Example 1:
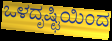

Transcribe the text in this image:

ಒಳದೃಷ್ಟಿಯಿಂದ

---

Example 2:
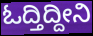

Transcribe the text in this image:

ಓದ್ತಿದ್ದೀನಿ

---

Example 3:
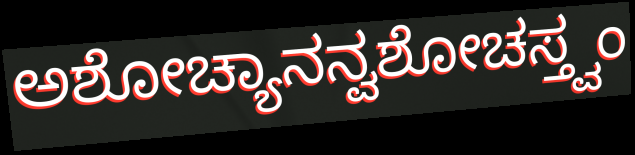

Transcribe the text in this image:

ಅಶೋಚ್ಯಾನನ್ವಶೋಚಸ್ತ್ವಂ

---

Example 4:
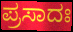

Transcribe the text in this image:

ಪ್ರಸಾದಃ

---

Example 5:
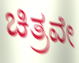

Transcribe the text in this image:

ಚಿತ್ರವೇ